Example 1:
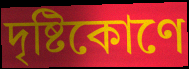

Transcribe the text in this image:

দৃষ্টিকোণে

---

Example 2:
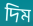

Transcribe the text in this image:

দিম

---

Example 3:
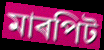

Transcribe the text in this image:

মাৰপিট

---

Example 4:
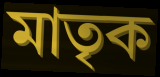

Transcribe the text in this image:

মাতৃক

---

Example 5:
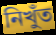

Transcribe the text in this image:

নিখুঁত